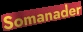
Somanader